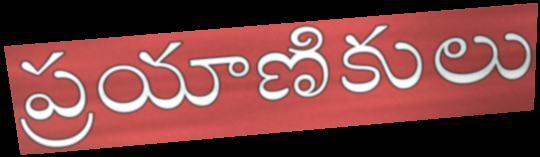
ప్రయాణికులు